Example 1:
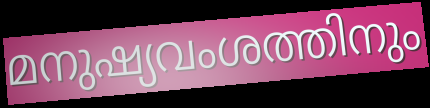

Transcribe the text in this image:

മനുഷ്യവംശത്തിനും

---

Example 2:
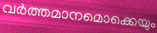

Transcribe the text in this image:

വർത്തമാനമൊക്കെയും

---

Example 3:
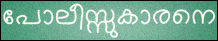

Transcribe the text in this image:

പോലീസ്സുകാരനെ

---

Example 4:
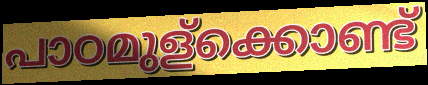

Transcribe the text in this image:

പാഠമുള്ക്കൊണ്ട്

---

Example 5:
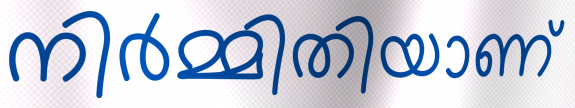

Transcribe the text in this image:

നിർമ്മിതിയാണ്